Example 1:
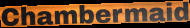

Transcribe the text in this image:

Chambermaid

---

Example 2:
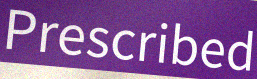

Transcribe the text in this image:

Prescribed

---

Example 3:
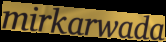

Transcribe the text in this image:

mirkarwada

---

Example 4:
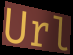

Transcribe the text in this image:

Url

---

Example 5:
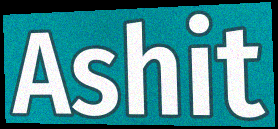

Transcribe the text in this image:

Ashit